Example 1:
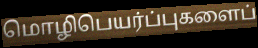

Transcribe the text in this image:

மொழிபெயர்ப்புகளைப்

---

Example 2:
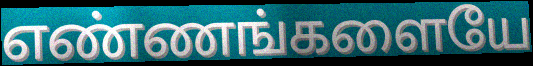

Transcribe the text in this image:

எண்ணங்களையே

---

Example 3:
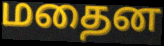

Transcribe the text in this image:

மதைன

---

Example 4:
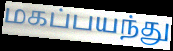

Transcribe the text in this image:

மகப்பயந்து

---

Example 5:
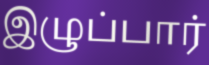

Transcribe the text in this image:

இழுப்பார்